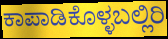
ಕಾಪಾಡಿಕೊಳ್ಳಬಲ್ಲಿರಿ